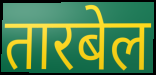
तारबेल